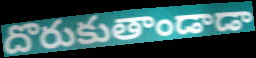
దొరుకుతాండాడా